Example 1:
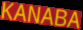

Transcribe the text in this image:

KANABA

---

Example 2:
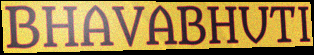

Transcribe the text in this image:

BHAVABHUTI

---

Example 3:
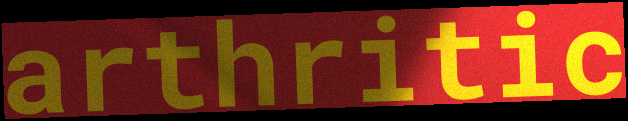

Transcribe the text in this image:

arthritic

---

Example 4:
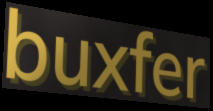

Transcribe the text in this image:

buxfer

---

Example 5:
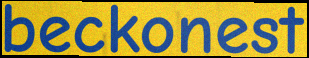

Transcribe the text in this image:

beckonest